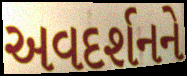
અવદર્શનને